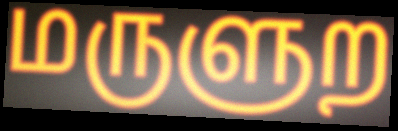
மருளுற